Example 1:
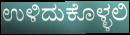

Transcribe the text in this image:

ಉಳಿದುಕೊಳ್ಳಲಿ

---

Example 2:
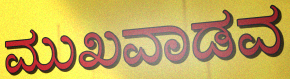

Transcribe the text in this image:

ಮುಖವಾಡವ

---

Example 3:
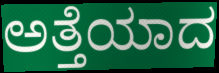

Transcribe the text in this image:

ಅತ್ತೆಯಾದ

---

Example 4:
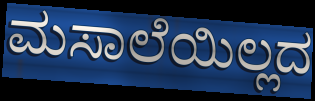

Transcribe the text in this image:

ಮಸಾಲೆಯಿಲ್ಲದ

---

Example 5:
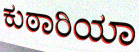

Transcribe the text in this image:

ಕುಠಾರಿಯಾ